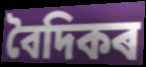
বৈদিকৰ